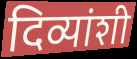
दिव्यांशी